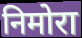
निमोरा